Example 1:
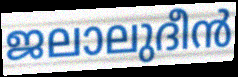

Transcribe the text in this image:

ജലാലുദീൻ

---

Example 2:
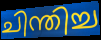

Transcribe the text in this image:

ചിന്തിച്ച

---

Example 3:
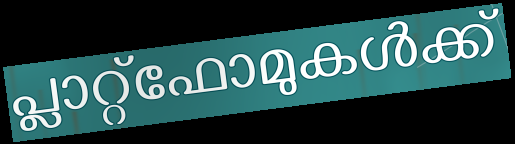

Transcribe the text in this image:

പ്ലാറ്റ്ഫോമുകൾക്ക്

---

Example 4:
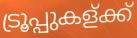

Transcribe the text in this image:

ട്രൂപ്പുകള്ക്ക്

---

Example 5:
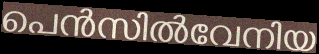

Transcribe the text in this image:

പെൻസിൽവേനിയ